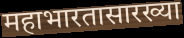
महाभारतासारख्या